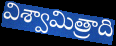
విశ్వామిత్రాది